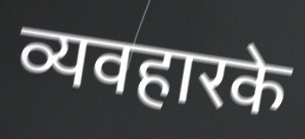
व्यवहारके